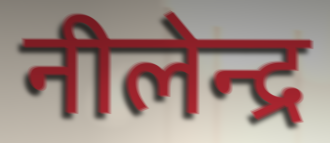
नीलेन्द्र